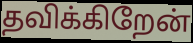
தவிக்கிறேன்